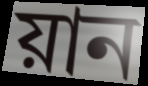
য়ান